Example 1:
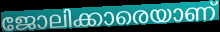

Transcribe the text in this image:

ജോലിക്കാരെയാണ്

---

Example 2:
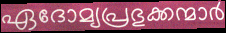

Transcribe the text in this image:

ഏദോമ്യപ്രഭുക്കന്മാർ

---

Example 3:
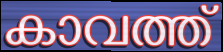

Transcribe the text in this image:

കാവത്ത്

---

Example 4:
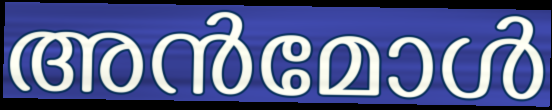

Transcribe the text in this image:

അൻമോൾ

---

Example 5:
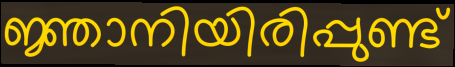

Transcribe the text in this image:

ജ്ഞാനിയിരിപ്പുണ്ട്